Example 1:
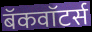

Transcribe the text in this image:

बॅकवॉटर्स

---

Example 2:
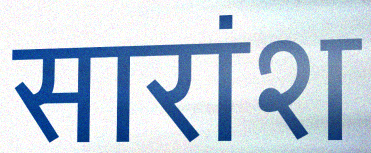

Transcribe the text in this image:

सारांश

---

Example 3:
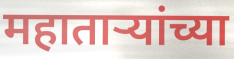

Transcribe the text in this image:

महाताऱ्यांच्या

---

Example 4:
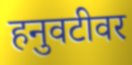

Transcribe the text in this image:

हनुवटीवर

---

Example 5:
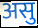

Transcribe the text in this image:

असु